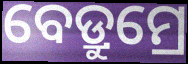
ବେଡ୍ରୁମ୍ରେ